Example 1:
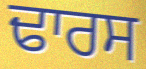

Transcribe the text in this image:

ਢਾਰਸ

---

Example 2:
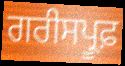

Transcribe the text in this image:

ਗਰੀਸਪ੍ਰੂਫ਼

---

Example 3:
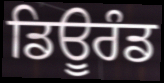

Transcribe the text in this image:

ਡਿਊਰੰਡ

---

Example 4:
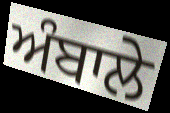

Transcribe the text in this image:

ਅੰਬਾਲੇ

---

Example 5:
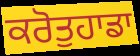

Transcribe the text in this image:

ਕਰੋਤੁਹਾਡਾ